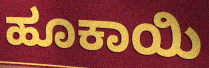
ಹೂಕಾಯಿ